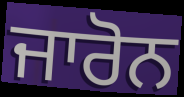
ਜਾਰੋਨ